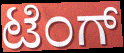
ಟೆಂಗ್